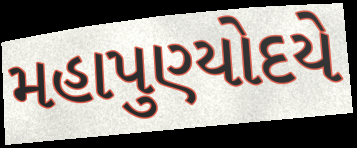
મહાપુણ્યોદયે